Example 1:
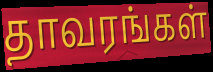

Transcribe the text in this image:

தாவரங்கள்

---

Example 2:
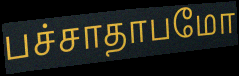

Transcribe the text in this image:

பச்சாதாபமோ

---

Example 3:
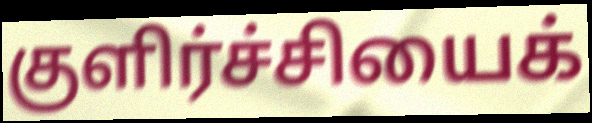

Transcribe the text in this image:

குளிர்ச்சியைக்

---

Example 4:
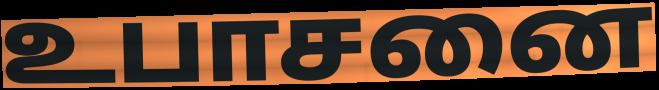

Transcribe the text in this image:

உபாசனை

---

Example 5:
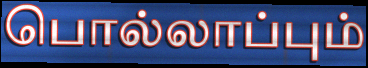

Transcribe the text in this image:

பொல்லாப்பும்